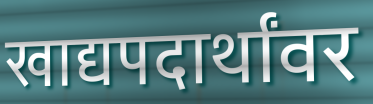
खाद्यपदार्थांवर